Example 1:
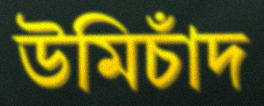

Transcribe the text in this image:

উমিচাঁদ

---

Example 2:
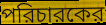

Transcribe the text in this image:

পরিচারকের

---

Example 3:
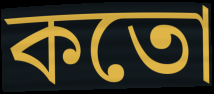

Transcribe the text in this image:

কতো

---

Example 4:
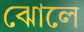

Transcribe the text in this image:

ঝোলে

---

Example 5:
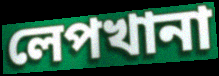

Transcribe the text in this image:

লেপখানা